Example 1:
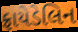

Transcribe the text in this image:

ફ્રાયેડેલિન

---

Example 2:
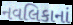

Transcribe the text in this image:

નવલિકાનાં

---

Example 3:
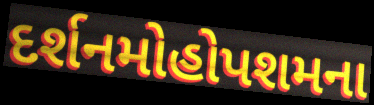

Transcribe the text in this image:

દર્શનમોહોપશમના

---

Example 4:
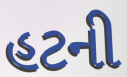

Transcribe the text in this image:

હટની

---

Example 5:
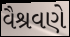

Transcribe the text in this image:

વૈશ્રવણે